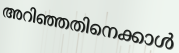
അറിഞ്ഞതിനെക്കാൾ